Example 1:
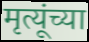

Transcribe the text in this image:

मृत्यूंच्या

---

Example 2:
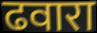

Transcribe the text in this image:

ढवारा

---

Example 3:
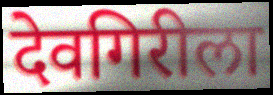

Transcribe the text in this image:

देवगिरीला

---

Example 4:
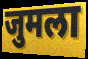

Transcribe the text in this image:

जुमला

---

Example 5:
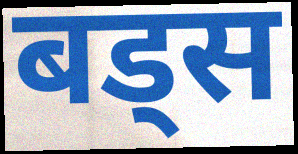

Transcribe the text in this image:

बड्स